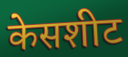
केसशीट